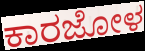
ಕಾರಜೋಳ